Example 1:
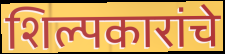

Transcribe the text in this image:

शिल्पकारांचे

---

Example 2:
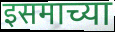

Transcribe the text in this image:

इसमाच्या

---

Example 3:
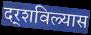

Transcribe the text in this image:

दर्शविल्यास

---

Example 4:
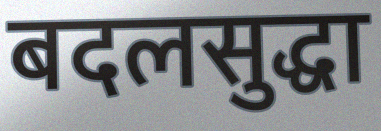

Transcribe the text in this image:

बदलसुद्धा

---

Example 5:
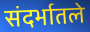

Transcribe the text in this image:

संदर्भातले